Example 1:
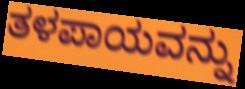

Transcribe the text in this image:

ತಳಪಾಯವನ್ನು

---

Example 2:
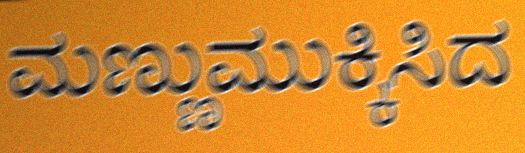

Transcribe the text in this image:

ಮಣ್ಣುಮುಕ್ಕಿಸಿದ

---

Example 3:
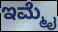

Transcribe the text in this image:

ಇಮ್ಮೈ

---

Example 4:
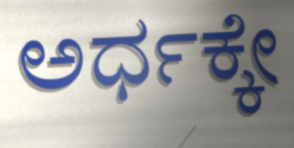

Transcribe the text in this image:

ಅರ್ಧಕ್ಕೇ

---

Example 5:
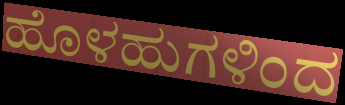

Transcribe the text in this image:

ಹೊಳಹುಗಳಿಂದ